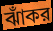
ঝাঁকর